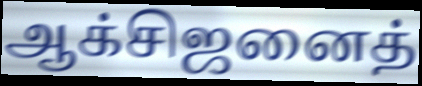
ஆக்சிஜனைத்